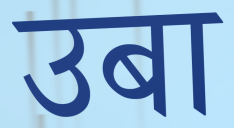
उबा